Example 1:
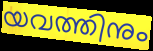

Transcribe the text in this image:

യവത്തിനും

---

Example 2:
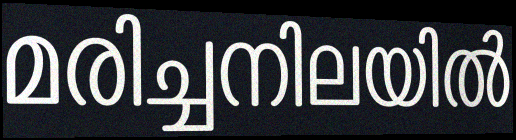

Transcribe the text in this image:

മരിച്ചനിലയിൽ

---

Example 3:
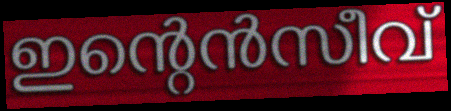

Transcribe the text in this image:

ഇന്റെൻസീവ്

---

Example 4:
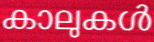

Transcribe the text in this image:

കാലുകൾ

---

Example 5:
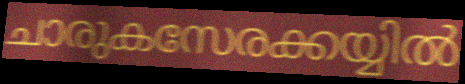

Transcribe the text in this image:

ചാരുകസേരക്കയ്യിൽ